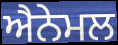
ਐਨੇਮਲ